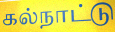
கல்நாட்டு